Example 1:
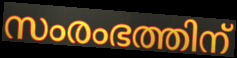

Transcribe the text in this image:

സംരംഭത്തിന്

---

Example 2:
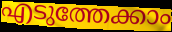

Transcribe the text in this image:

എടുത്തേക്കാം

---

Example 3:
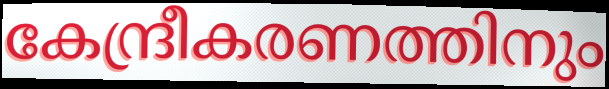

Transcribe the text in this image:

കേന്ദ്രീകരണത്തിനും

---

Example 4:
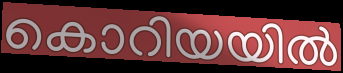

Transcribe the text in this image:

കൊറിയയിൽ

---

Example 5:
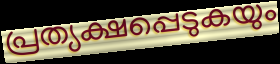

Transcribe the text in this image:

പ്രത്യക്ഷപ്പെടുകയും